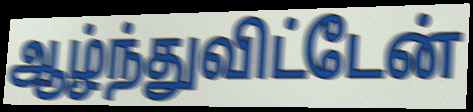
ஆழ்ந்துவிட்டேன்